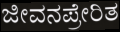
ಜೀವನಪ್ರೇರಿತ